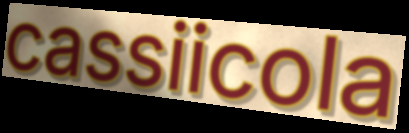
cassiicola